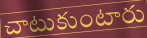
చాటుకుంటారు